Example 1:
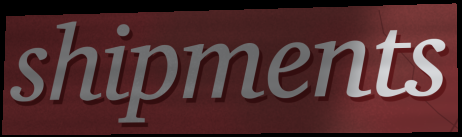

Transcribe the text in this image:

shipments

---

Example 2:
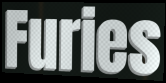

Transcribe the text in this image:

Furies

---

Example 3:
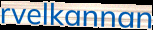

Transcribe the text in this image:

rvelkannan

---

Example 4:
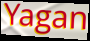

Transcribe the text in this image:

Yagan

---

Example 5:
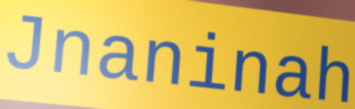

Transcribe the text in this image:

Jnaninah